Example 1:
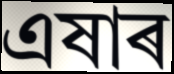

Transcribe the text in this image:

এষাৰ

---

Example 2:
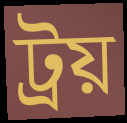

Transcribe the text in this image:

ট্ৰয়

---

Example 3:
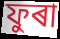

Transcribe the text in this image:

ফুৰা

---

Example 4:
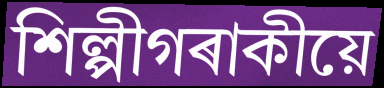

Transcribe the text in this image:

শিল্পীগৰাকীয়ে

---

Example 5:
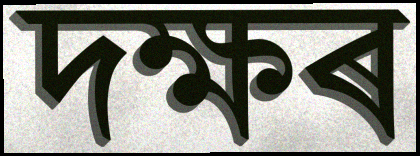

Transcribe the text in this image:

দক্ষৰ